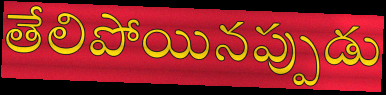
తేలిపోయినప్పుడు